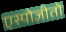
एस्पोज़ीतो